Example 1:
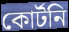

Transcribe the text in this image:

কোর্টনি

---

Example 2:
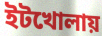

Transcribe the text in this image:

ইটখোলায়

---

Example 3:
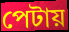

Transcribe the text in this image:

পেটায়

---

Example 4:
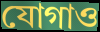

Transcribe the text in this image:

যোগাও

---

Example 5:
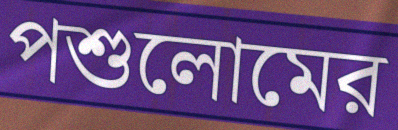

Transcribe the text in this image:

পশুলোমের